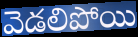
వెడలిపోయి